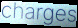
charges